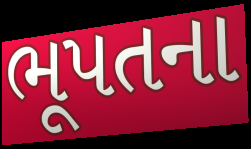
ભૂપતના